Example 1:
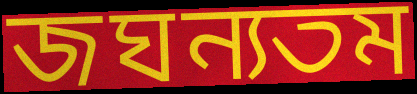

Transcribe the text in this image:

জঘন্যতম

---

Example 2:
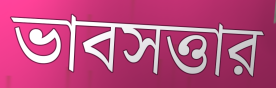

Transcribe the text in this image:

ভাবসত্তার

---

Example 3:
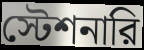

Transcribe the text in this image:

স্টেশনারি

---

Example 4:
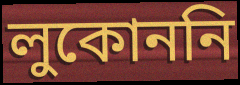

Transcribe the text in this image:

লুকোননি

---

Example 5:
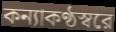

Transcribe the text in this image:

কন্যাকণ্ঠস্বরে